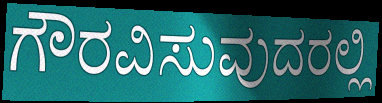
ಗೌರವಿಸುವುದರಲ್ಲಿ